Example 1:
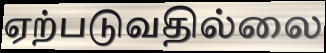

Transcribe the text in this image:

ஏற்படுவதில்லை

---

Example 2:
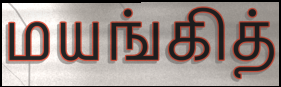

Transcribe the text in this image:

மயங்கித்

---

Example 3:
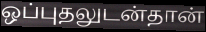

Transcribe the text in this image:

ஒப்புதலுடன்தான்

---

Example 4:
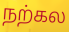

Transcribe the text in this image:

நற்கல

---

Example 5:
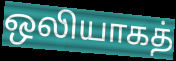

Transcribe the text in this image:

ஒலியாகத்